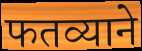
फतव्याने